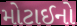
મોટાઈનો